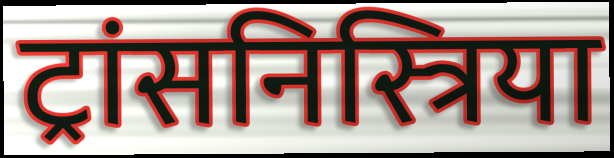
ट्रांसनिस्त्रिया